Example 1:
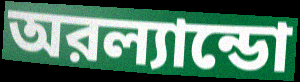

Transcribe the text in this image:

অরল্যান্ডো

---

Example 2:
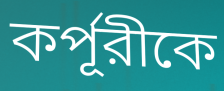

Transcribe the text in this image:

কর্পূরীকে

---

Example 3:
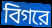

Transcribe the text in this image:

বিগরে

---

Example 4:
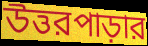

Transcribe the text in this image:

উত্তরপাড়ার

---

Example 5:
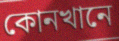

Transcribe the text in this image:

কোনখানে